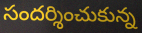
సందర్శించుకున్న